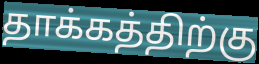
தாக்கத்திற்கு